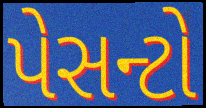
પેસન્ટો